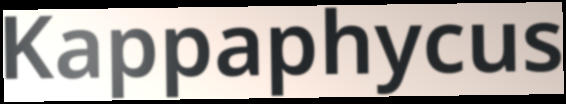
Kappaphycus